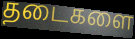
தடைகளை